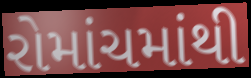
રોમાંચમાંથી